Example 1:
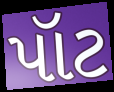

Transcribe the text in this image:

પૉટ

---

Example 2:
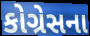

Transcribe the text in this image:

કોગ્રેસના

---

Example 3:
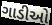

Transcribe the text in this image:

ગાડીઓ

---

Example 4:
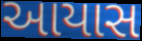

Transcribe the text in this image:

આયાસ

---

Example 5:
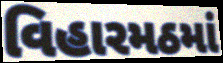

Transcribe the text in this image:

વિહારમઠમાં